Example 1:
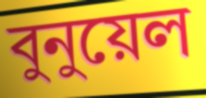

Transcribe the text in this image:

বুনুয়েল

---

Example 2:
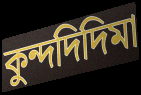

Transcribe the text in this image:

কুন্দদিদিমা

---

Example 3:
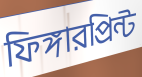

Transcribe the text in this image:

ফিঙ্গারপ্রিন্ট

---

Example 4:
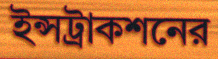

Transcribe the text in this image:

ইন্সট্রাকশনের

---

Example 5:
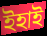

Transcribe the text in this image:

ইহাই